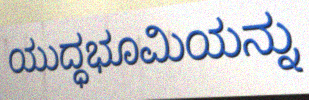
ಯುದ್ಧಭೂಮಿಯನ್ನು